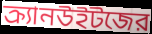
ক্র্যানউইটজের